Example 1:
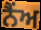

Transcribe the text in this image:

ਨੈਂਅ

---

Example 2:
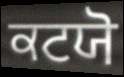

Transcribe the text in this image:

ਕਟਯੋ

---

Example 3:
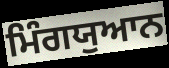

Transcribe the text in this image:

ਮਿੰਗਯੁਆਨ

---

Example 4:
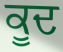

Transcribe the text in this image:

ਕੂਦ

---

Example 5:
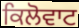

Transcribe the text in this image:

ਕਿਲੋਵਾਟ